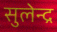
सुलेन्द्र